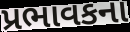
પ્રભાવકના